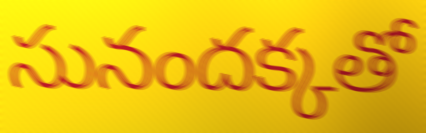
సునందక్కతో